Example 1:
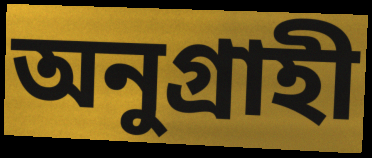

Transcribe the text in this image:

অনুগ্রাহী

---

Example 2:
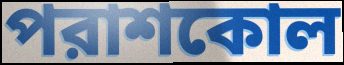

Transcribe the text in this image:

পরাশকোল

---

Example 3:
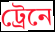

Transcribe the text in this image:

ট্রেনে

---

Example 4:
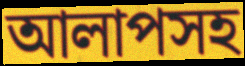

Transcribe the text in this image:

আলাপসহ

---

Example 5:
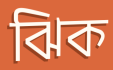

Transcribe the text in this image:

ঝিক